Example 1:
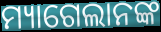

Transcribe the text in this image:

ମ୍ୟାଗେଲାନଙ୍କ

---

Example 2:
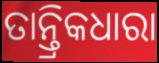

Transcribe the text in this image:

ତାନ୍ତ୍ରିକଧାରା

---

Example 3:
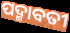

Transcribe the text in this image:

ପଦ୍ମାବତୀ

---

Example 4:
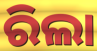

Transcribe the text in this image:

ରିଲା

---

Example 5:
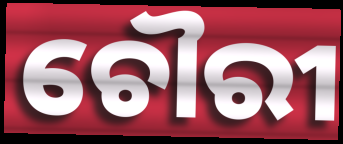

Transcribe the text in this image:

ଚୌରୀ